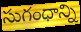
సుగంధాన్ని